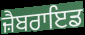
ਜ਼ੈਬਰਾਇਡ